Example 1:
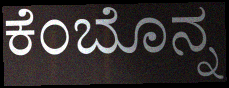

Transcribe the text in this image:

ಕೆಂಬೊನ್ನ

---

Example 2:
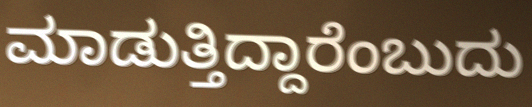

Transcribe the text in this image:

ಮಾಡುತ್ತಿದ್ದಾರೆಂಬುದು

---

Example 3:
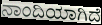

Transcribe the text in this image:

ನಾಂದಿಯಾಗಿದೆ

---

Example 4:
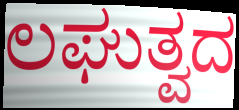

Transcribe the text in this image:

ಲಘುತ್ವದ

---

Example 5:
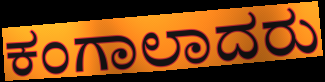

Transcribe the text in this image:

ಕಂಗಾಲಾದರು